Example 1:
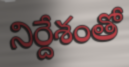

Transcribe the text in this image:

నిర్దేశంతో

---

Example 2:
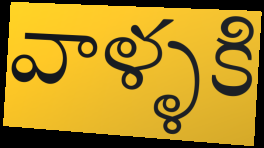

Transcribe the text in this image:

వాళ్ళకి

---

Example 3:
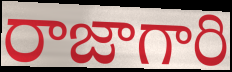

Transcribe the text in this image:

రాజాగారి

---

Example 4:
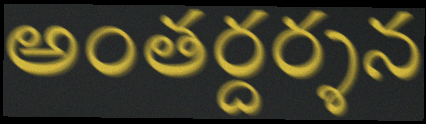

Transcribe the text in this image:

అంతర్దర్శన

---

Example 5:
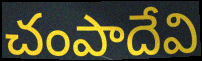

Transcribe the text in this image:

చంపాదేవి